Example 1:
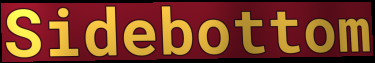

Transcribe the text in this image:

Sidebottom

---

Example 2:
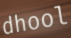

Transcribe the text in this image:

dhool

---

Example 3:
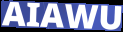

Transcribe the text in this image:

AIAWU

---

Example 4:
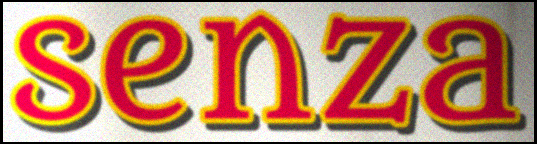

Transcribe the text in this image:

senza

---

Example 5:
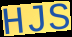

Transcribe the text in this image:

HJS